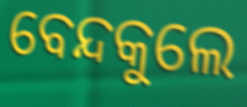
ବେନ୍ଦକୁଲେ